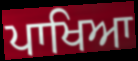
ਪਾਖਿਆ